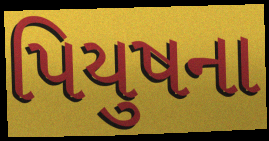
પિયુષના